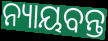
ନ୍ୟାୟବନ୍ତ